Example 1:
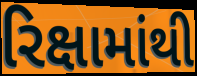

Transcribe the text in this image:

રિક્ષામાંથી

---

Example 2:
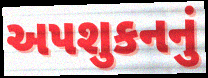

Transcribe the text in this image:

અપશુકનનું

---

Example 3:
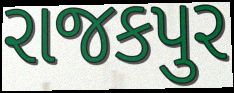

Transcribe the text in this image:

રાજકપુર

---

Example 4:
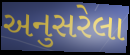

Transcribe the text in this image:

અનુસરેલા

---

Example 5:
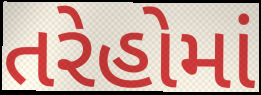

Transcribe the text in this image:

તરેહોમાં